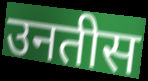
उनतीस